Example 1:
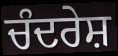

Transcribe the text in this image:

ਚੰਦਰੇਸ਼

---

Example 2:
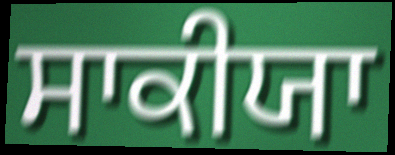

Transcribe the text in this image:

ਸਾਕੀਯਾ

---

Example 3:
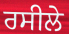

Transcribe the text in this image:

ਰਸੀਲੇ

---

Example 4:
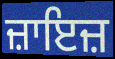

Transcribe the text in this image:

ਜ਼ਾਇਜ਼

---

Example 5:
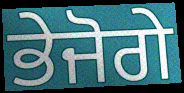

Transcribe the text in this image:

ਭੇਜੋਗੇ